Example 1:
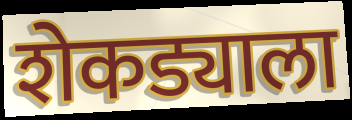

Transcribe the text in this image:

शेकड्याला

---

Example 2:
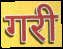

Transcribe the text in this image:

गरी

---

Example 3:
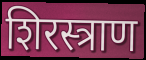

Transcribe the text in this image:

शिरस्त्राण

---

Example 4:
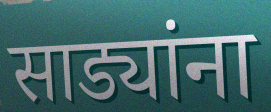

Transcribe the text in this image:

साड्यांना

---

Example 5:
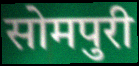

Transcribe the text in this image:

सोमपुरी